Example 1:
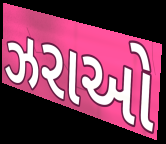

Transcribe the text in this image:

ઝરાઓ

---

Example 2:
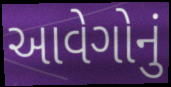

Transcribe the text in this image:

આવેગોનું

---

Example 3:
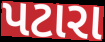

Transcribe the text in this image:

પટારા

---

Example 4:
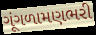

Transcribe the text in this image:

ગૂંગળામણભરી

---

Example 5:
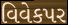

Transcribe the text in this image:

વિવેકપર